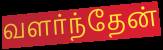
வளர்ந்தேன்